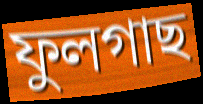
ফুলগাছ